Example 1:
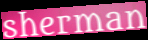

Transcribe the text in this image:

sherman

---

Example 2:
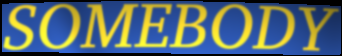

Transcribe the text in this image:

SOMEBODY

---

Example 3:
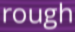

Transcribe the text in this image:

rough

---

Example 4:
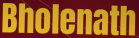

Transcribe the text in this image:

Bholenath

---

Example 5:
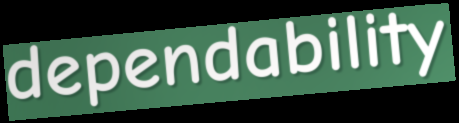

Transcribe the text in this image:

dependability